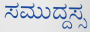
ಸಮುದ್ದಸ್ಸ